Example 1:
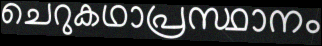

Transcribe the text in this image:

ചെറുകഥാപ്രസ്ഥാനം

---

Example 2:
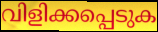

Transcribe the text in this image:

വിളിക്കപ്പെടുക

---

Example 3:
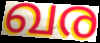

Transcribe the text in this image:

ഖര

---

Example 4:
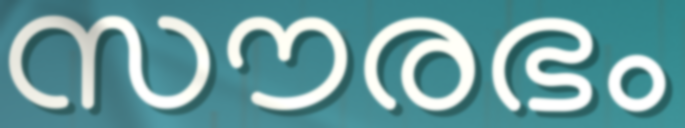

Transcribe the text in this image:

സൗരഭം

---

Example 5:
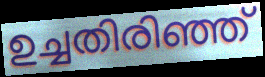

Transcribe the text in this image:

ഉച്ചതിരിഞ്ഞ്